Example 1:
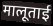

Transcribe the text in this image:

मालूताई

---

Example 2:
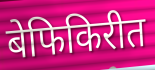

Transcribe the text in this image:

बेफिकिरीत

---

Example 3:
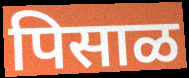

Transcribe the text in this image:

पिसाळ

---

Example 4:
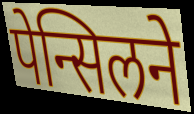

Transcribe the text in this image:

पेन्सिलने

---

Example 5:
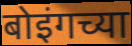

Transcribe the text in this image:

बोइंगच्या